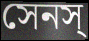
সেনস্